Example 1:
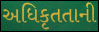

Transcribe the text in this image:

અધિકૃતતાની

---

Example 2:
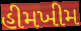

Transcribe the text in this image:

હીમખીમ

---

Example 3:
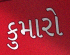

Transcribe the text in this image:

કુમારો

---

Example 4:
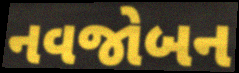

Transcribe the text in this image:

નવજોબન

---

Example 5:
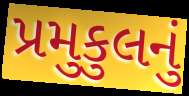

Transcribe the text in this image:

પ્રમુકુલનું